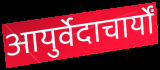
आयुर्वेदाचार्यों